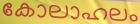
കോലാഹലം